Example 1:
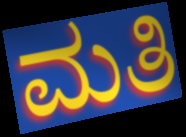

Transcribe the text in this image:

ಮತಿ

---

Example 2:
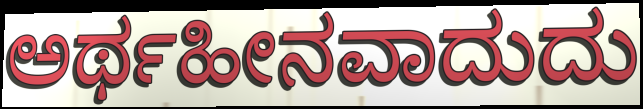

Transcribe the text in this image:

ಅರ್ಥಹೀನವಾದುದು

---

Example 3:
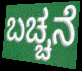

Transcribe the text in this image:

ಬಚ್ಚನೆ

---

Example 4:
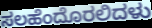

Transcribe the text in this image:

ಸಲಹೆಂದೊರಲಿದಳು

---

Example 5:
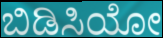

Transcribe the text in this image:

ಬಿಡಿಸಿಯೋ